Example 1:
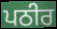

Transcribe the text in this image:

ਪਠੀਰ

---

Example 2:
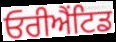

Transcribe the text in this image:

ਓਰੀਐਂਟਿਡ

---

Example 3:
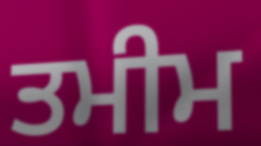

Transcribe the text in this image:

ਤਮੀਮ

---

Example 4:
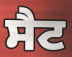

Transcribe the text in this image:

ਸੈਟ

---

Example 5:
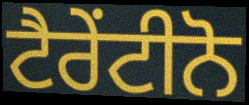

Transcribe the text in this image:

ਟੈਰੇਂਟੀਨੋ